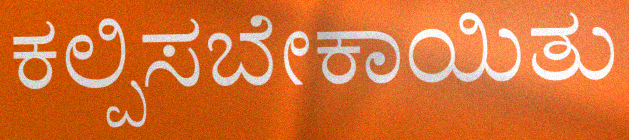
ಕಲ್ಪಿಸಬೇಕಾಯಿತು